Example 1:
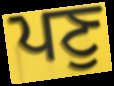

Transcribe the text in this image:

ਪਣੁ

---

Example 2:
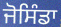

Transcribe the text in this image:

ਜੋਸਿੰਡਾ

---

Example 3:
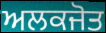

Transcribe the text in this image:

ਅਲਕਜੋਤ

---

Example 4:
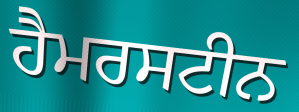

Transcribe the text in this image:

ਹੈਮਰਸਟੀਨ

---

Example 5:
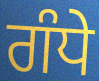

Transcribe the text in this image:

ਗੰਧੇ